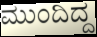
ಮುಂದಿದ್ದ